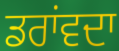
ਡਰਾਂਵਦਾ